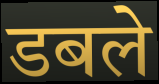
डबले